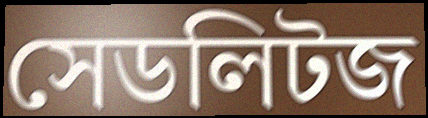
সেডলিটজ